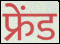
फ्रेंड